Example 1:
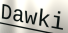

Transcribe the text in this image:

Dawki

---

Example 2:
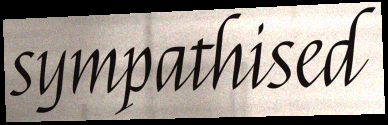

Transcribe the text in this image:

sympathised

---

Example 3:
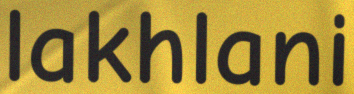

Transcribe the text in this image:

lakhlani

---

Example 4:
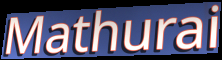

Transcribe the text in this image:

Mathurai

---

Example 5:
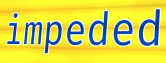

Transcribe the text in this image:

impeded